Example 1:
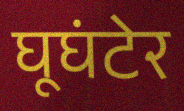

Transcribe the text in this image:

घूघंटेर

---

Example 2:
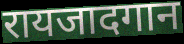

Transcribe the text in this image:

रायजादगान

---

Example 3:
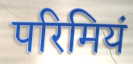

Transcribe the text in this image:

परिमियं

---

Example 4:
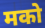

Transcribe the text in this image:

मको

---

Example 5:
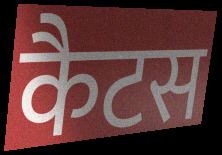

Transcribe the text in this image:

कैटस